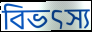
বিভৎস্য